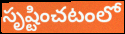
సృష్టించటంలో